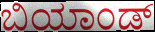
ಬಿಯಾಂಡ್